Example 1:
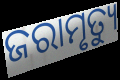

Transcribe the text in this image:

ଜରାମୃତ୍ୟୁ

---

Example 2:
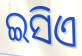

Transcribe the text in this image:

ଇସିଏ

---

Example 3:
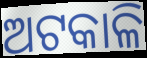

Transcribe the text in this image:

ଅଟକାଳି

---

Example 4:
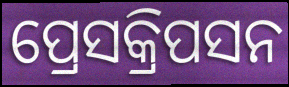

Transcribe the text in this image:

ପ୍ରେସକ୍ରିପସନ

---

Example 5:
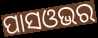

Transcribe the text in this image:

ପାସଓଭର